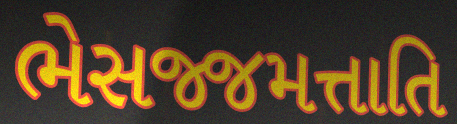
ભેસજ્જમત્તાતિ